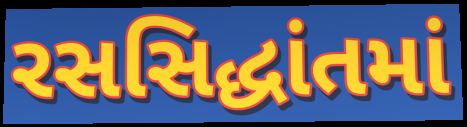
રસસિદ્ધાંતમાં